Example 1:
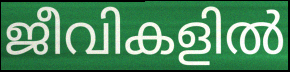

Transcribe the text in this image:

ജീവികളിൽ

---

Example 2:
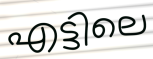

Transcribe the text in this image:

എട്ടിലെ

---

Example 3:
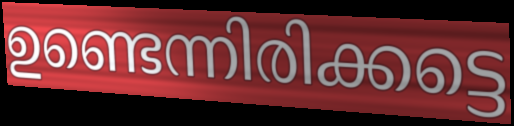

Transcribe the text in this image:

ഉണ്ടെന്നിരിക്കട്ടെ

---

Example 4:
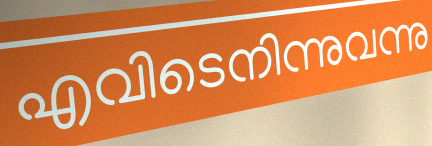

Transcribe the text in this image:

എവിടെനിന്നുവന്നു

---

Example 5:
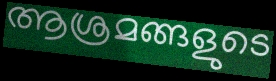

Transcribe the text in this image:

ആശ്രമങ്ങളുടെ